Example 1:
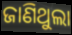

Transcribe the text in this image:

ଜାଣିଥୁଲା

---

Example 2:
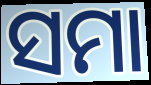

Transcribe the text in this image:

ସମା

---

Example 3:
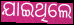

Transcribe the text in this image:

ଯାଇଥିଲେ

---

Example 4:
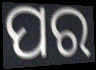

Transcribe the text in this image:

ପର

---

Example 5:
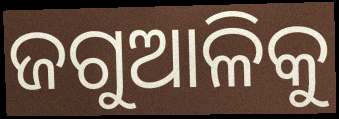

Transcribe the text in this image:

ଜଗୁଆଳିକୁ